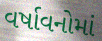
વર્ષાવનોમાં